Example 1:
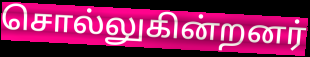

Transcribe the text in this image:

சொல்லுகின்றனர்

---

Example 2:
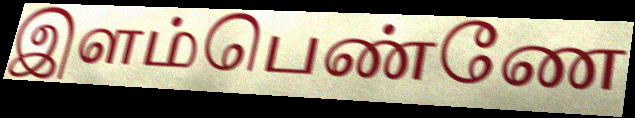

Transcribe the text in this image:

இளம்பெண்ணே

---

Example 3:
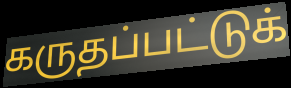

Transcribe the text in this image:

கருதப்பட்டுக்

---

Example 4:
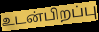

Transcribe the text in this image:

உடன்பிறப்பு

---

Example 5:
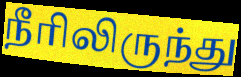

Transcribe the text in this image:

நீரிலிருந்து